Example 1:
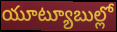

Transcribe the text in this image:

యూట్యూబుల్లో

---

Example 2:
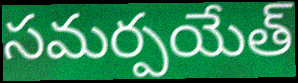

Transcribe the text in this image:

సమర్పయేత్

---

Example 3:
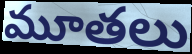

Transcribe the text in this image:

మూతలు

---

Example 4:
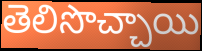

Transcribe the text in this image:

తెలిసొచ్చాయి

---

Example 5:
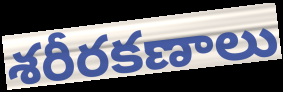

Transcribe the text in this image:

శరీరకణాలు